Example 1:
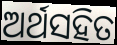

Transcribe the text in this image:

ଅର୍ଥସହିତ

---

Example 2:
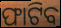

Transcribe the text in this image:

ଫାଟିବ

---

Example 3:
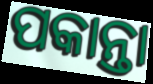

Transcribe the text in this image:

ପକାନ୍ତା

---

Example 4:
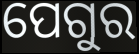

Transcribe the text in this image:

ପେଗୁର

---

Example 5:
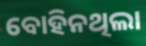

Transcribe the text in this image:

ବୋହିନଥିଲା